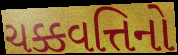
ચક્કવત્તિનો